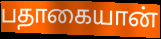
பதாகையான்